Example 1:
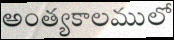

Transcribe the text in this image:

అంత్యకాలములో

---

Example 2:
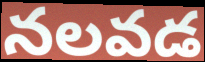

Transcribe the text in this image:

నలవడ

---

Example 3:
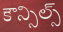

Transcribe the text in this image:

కౌన్సిల్స్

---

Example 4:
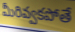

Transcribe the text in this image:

మీరివ్వకపోతే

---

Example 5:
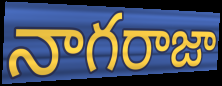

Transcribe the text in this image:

నాగరాజా